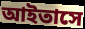
আইতাসে